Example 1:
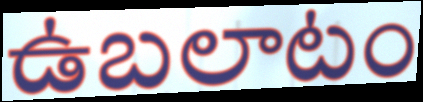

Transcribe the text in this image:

ఉబలాటం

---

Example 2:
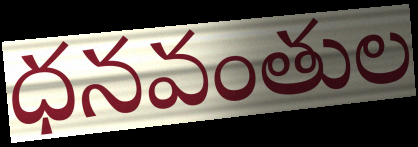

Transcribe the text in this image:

ధనవంతుల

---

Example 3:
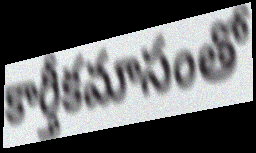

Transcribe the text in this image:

కార్తీకమాసంతో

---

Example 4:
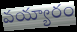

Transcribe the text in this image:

వయ్యారం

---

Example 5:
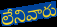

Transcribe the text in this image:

లేనివారు